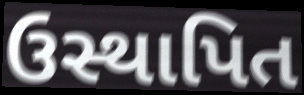
ઉસ્થાપિત